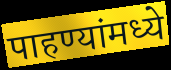
पाहण्यांमध्ये